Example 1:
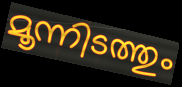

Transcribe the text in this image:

മൂന്നിടത്തും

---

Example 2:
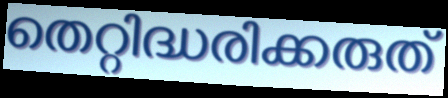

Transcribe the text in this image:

തെറ്റിദ്ധരിക്കരുത്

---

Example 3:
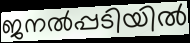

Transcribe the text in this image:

ജനൽപ്പടിയിൽ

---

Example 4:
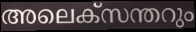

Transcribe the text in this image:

അലെക്സന്തറും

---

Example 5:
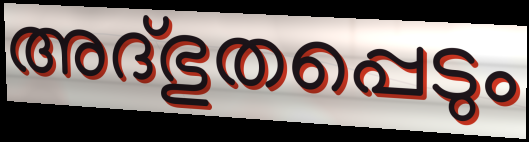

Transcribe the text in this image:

അദ്ഭുതപ്പെടും